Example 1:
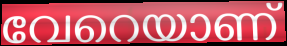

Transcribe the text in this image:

വേറെയാണ്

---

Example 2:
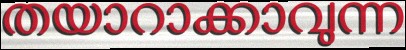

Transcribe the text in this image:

തയാറാക്കാവുന്ന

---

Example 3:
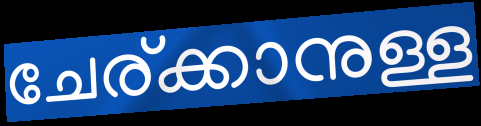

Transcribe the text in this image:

ചേര്ക്കാനുള്ള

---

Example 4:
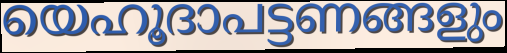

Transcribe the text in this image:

യെഹൂദാപട്ടണങ്ങളും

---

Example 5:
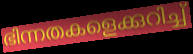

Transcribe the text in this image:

ഭിന്നതകളെക്കുറിച്ച്